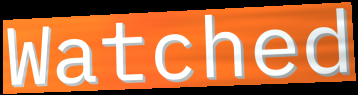
Watched